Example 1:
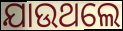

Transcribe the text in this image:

ଯାଉଥଲେ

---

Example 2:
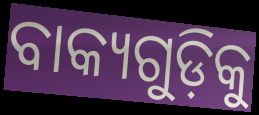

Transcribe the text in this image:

ବାକ୍ୟଗୁଡ଼ିକୁ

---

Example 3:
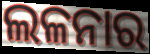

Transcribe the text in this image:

ଲଳନାର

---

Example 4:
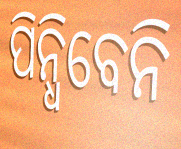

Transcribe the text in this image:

ପିନ୍ଧିବେନି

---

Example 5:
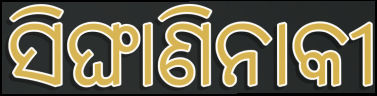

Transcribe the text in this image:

ସିଙ୍ଘାଣିନାକୀ